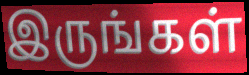
இருங்கள்